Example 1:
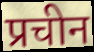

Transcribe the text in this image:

प्रचीन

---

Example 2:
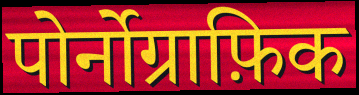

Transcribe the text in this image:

पोर्नोग्राफ़िक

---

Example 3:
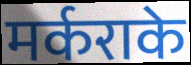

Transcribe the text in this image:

मर्कराके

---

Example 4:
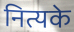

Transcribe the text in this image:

नित्यके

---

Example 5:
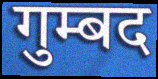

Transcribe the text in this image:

गुम्बद